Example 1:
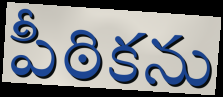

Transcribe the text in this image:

పీఠికను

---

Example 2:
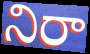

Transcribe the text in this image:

నిరా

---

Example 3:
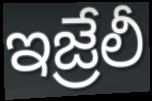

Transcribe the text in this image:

ఇజ్రేలీ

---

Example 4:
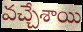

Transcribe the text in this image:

వచ్చేశాయి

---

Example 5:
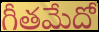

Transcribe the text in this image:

గీతమేదో